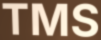
TMS